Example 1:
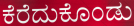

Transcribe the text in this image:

ಕೆರೆದುಕೊಂಡು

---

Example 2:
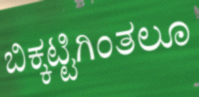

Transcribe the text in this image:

ಬಿಕ್ಕಟ್ಟಿಗಿಂತಲೂ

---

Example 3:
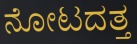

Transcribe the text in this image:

ನೋಟದತ್ತ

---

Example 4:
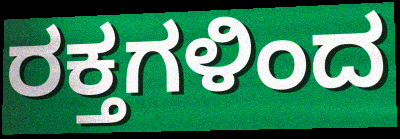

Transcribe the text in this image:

ರಕ್ತಗಳಿಂದ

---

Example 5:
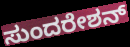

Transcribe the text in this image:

ಸುಂದರೇಶನ್